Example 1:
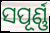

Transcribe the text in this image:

ସପୂର୍ଣ୍ଣ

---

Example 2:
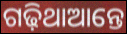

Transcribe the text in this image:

ଗଢ଼ିଥାଆନ୍ତେ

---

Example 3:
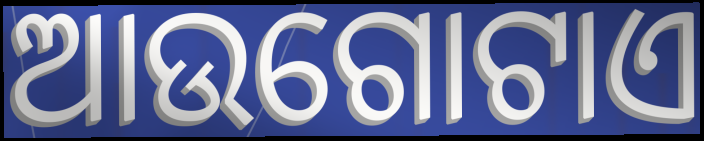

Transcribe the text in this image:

ଆଉଗୋଟାଏ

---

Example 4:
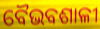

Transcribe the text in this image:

ବୈଭବଶାଳୀ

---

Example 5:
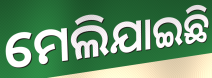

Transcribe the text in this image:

ମେଲିଯାଇଛି